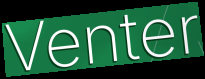
Venter